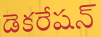
డెకరేషన్